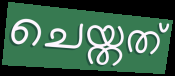
ചെയ്തത്